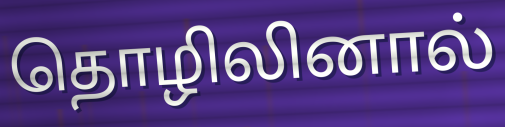
தொழிலினால்